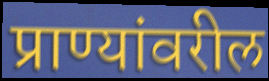
प्राण्यांवरील